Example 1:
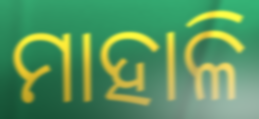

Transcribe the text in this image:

ମାହାଳି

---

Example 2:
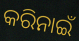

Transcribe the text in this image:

କରିନାଇଁ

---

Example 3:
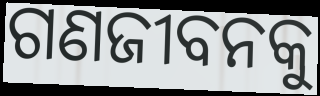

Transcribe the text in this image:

ଗଣଜୀବନକୁ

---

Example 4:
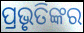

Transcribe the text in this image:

ପ୍ରଭୃତିଙ୍କର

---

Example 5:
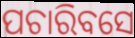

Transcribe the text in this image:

ପଚାରିବସେ